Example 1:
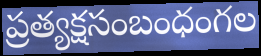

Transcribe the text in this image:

ప్రత్యక్షసంబంధంగల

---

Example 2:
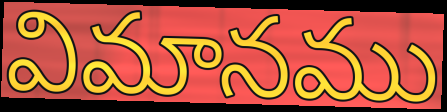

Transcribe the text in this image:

విమానము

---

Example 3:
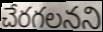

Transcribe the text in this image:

చేరగలనని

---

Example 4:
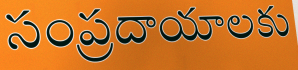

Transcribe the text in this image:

సంప్రదాయాలకు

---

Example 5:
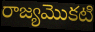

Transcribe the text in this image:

రాజ్యమొకటి